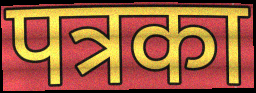
पत्रका